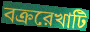
বক্ররেখাটি